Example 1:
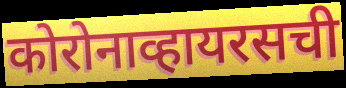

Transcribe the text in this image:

कोरोनाव्हायरसची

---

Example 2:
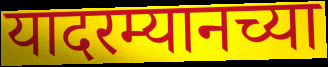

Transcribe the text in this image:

यादरम्यानच्या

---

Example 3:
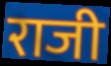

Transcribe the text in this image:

राजी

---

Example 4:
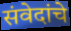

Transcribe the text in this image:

संवेदांचे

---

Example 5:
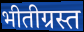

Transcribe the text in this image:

भीतीग्रस्त